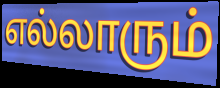
எல்லாரும்